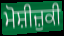
ਮੋਸ਼ੀਜ਼ੁਕੀ